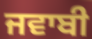
ਜਵਾਬੀ